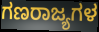
ಗಣರಾಜ್ಯಗಳ